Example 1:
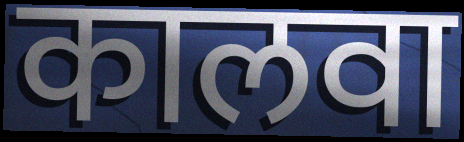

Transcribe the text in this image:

कालवा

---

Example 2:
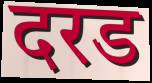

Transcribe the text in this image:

दरड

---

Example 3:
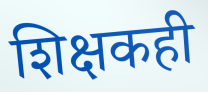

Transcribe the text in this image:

शिक्षकही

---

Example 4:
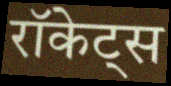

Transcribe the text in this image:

रॉकेट्स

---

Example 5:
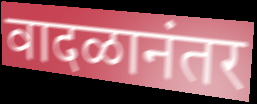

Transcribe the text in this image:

वादळानंतर